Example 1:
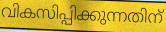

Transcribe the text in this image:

വികസിപ്പിക്കുന്നതിന്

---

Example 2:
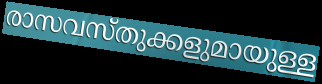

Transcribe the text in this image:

രാസവസ്തുക്കളുമായുള്ള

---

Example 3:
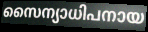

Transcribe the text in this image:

സൈന്യാധിപനായ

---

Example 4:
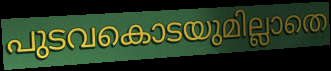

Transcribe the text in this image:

പുടവകൊടയുമില്ലാതെ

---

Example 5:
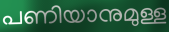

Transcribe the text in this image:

പണിയാനുമുള്ള